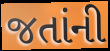
જતાંની